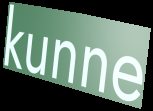
kunne